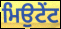
ਮਿਉਟੇਂਟ